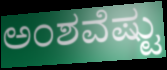
ಅಂಶವೆಷ್ಟು